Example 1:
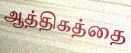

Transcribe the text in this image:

ஆத்திகத்தை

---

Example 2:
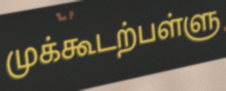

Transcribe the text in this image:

முக்கூடற்பள்ளு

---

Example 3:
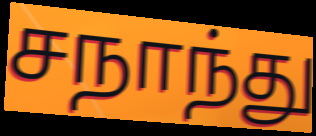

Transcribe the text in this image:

சநாந்து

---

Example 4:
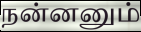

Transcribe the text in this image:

நன்னனும்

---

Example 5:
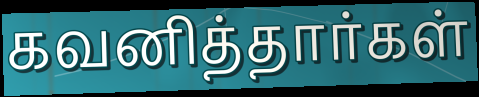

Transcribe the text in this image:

கவனித்தார்கள்